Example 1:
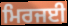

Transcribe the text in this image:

ਮਿਰਜਈ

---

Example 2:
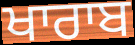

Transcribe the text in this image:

ਖਾਰਾਬ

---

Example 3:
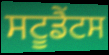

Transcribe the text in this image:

ਸਟੂਡੈਂਟਸ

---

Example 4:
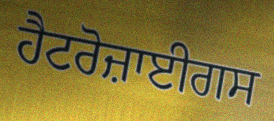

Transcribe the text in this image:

ਹੈਟਰੋਜ਼ਾਈਗਸ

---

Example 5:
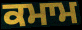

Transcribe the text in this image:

ਕਮਾਮ